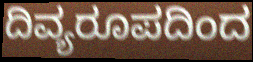
ದಿವ್ಯರೂಪದಿಂದ